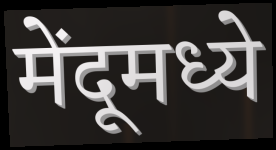
मेंदूमध्ये